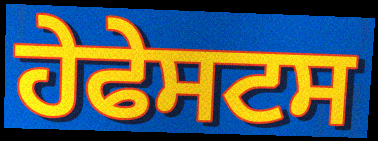
ਹੇਫੇਸਟਸ